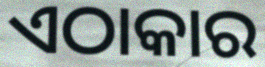
ଏଠାକାର